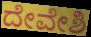
ದೇವೇಶಿ